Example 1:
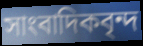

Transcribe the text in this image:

সাংবাদিকবৃন্দ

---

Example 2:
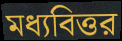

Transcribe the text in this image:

মধ্যবিত্তর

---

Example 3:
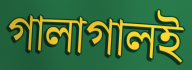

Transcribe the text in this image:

গালাগালই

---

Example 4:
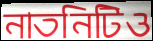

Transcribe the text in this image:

নাতনিটিও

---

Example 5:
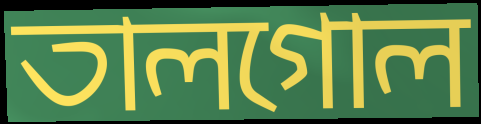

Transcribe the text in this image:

তালগোল